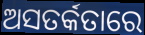
ଅସତର୍କତାରେ